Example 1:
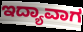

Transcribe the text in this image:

ಇದ್ಯಾವಾಗ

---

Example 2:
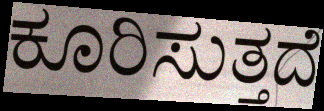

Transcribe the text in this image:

ಕೂರಿಸುತ್ತದೆ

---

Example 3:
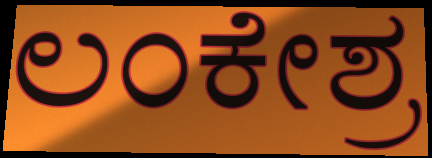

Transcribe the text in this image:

ಲಂಕೇಶ್ರ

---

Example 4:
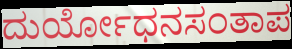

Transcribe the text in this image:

ದುರ್ಯೋಧನಸಂತಾಪ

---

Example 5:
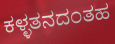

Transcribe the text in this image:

ಕಳ್ಳತನದಂತಹ